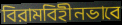
বিরামবিহীনভাবে